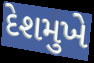
દેશમુખે